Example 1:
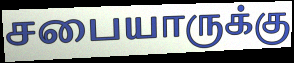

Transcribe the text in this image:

சபையாருக்கு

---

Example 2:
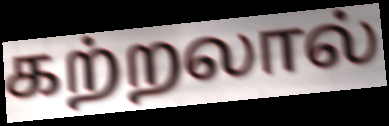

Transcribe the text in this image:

கற்றலால்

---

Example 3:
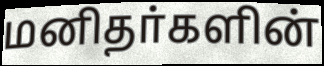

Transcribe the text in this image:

மனிதர்களின்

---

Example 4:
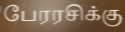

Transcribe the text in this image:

பேரரசிக்கு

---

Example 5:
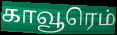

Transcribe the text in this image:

காவூரெம்